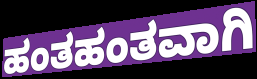
ಹಂತಹಂತವಾಗಿ